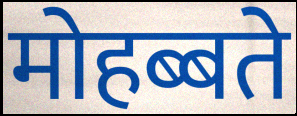
मोहब्बते